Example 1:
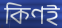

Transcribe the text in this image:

কিণই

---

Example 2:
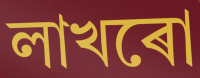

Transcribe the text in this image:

লাখৰো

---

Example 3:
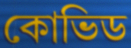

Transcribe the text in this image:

কোভিড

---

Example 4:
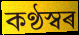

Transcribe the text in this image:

কণ্ঠস্বৰ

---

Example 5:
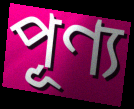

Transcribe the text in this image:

পূণ্য